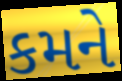
કમને